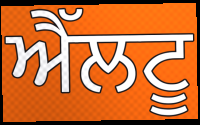
ਐੱਲਟੂ